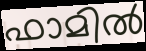
ഫാമിൽ